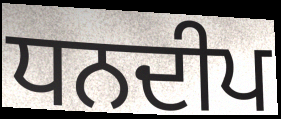
ਧਨਦੀਪ